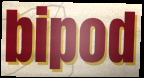
bipod